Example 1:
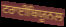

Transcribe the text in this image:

ਟਰਾਈਬਿਯੂਨਲ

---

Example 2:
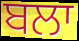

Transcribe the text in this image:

ਬਲਾ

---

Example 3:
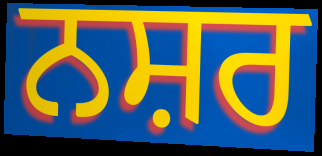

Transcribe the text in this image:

ਨਸ਼ਰ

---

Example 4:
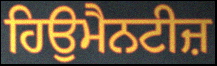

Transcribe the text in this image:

ਹਿਉਮੈਨਟੀਜ਼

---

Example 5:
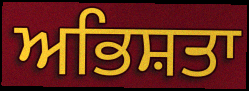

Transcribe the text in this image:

ਅਭਿਸ਼ਤਾ